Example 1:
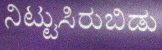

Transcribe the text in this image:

ನಿಟ್ಟುಸಿರುಬಿಡು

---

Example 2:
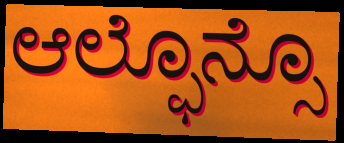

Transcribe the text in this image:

ಆಲ್ಫೊನ್ಸೊ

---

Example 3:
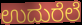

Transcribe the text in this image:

ಉದುರೆಲೆ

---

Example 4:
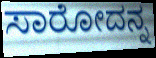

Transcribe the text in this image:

ಸಾರೋದನ್ನ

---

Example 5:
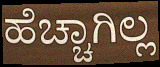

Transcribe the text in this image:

ಹೆಚ್ಚಾಗಿಲ್ಲ